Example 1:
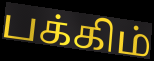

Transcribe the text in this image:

பக்கிம்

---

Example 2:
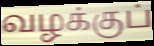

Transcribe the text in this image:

வழக்குப்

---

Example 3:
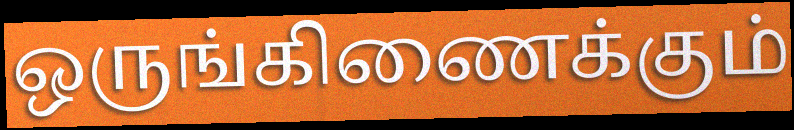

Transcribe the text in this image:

ஒருங்கிணைக்கும்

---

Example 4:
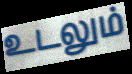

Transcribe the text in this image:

உடலும்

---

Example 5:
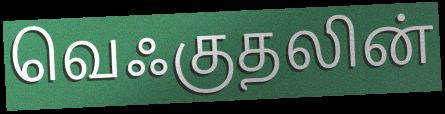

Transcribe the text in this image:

வெஃகுதலின்